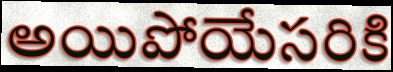
అయిపోయేసరికి